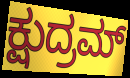
ಕ್ಷುದ್ರಮ್